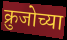
क्रुजोच्या